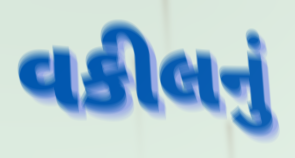
વકીલનું